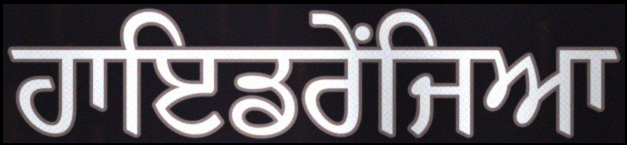
ਹਾਇਡਰੇਂਜਿਆ